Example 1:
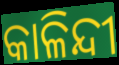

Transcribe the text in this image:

କାଳିନ୍ଦୀ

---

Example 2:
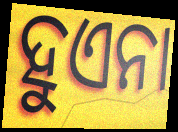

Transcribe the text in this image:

ହୁଏନା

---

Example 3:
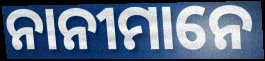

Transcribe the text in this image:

ନାନୀମାନେ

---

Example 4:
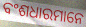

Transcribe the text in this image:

ବଂଶଧାରମାନେ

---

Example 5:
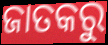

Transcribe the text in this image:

ଜାତକରୁ